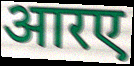
आरए